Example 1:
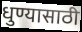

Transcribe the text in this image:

धुण्यासाठी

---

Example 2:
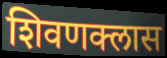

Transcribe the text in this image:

शिवणक्लास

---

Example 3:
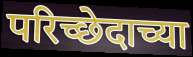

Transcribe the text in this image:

परिच्छेदाच्या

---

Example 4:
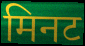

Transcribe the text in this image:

मिनट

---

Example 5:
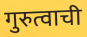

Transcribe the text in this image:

गुरुत्वाची